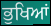
ਭੁਖਿਆਂ